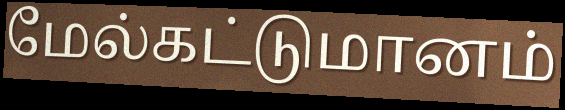
மேல்கட்டுமானம்